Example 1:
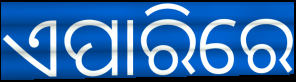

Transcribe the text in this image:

ଏପାରିରେ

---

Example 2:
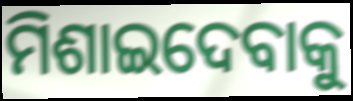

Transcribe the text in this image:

ମିଶାଇଦେବାକୁ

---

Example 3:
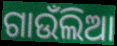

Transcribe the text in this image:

ଗାଉଁଲିଆ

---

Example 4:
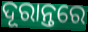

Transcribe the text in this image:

ଦୂରାନ୍ତରେ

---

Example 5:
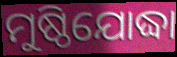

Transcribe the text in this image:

ମୁଷ୍ଠିଯୋଦ୍ଧା